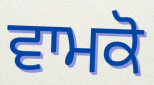
ਵਾਮਕੋ